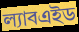
ল্যাবএইড